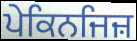
ਪੇਕਿਨਜਿਜ਼